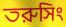
তরুসিং